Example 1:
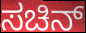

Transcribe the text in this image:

ಸಚಿನ್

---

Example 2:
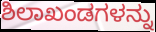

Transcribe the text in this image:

ಶಿಲಾಖಂಡಗಳನ್ನು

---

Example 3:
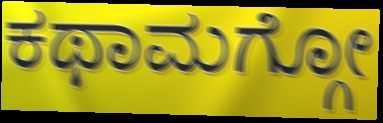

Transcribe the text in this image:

ಕಥಾಮಗ್ಗೋ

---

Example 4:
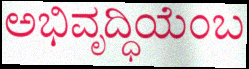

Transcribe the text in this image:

ಅಭಿವೃದ್ಧಿಯೆಂಬ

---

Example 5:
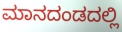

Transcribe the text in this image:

ಮಾನದಂಡದಲ್ಲಿ